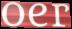
oer